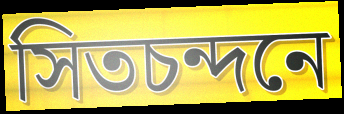
সিতচন্দনে